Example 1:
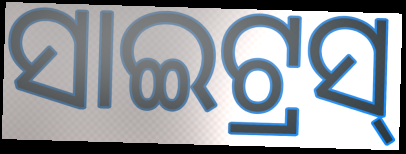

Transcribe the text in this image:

ସାଇଟ୍ରସ୍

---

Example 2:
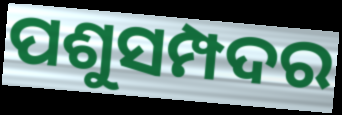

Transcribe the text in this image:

ପଶୁସମ୍ପଦର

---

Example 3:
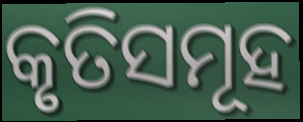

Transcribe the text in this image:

କୃତିସମୂହ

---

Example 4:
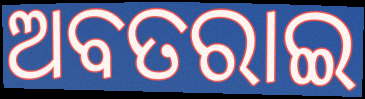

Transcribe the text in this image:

ଅବତରାଇ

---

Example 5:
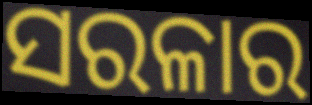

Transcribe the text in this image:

ସରଳାର